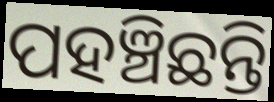
ପହଞ୍ଚିଛନ୍ତି